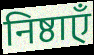
निष्ठाएँ